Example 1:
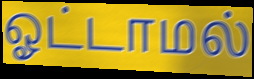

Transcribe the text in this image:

ஓட்டாமல்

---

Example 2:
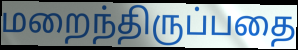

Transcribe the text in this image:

மறைந்திருப்பதை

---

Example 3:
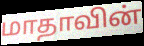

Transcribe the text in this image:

மாதாவின்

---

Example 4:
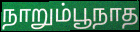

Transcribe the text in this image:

நாறும்பூநாத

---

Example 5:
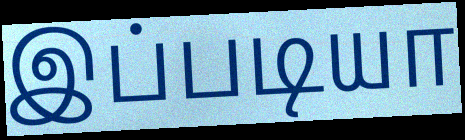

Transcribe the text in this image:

இப்படியா